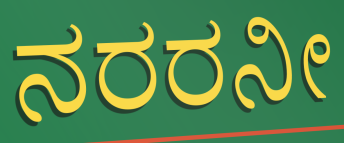
ನರರನೀ